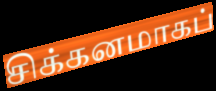
சிக்கனமாகப்